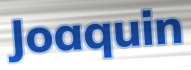
Joaquin